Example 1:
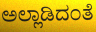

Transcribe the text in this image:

ಅಲ್ಲಾಡಿದಂತೆ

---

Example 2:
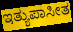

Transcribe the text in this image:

ಇತ್ಯುಪಾಸೀತ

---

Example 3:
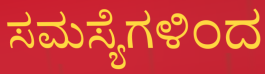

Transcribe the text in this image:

ಸಮಸ್ಯೆಗಳಿಂದ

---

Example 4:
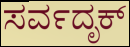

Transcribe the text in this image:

ಸರ್ವದೃಕ್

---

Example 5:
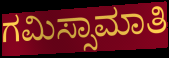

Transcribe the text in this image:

ಗಮಿಸ್ಸಾಮಾತಿ